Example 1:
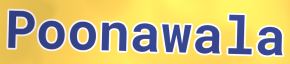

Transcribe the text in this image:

Poonawala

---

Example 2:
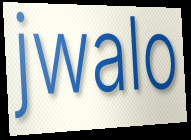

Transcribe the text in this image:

jwalo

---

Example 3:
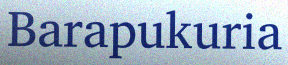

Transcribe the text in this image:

Barapukuria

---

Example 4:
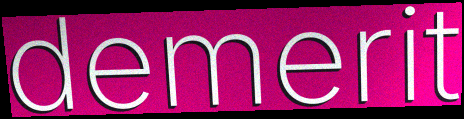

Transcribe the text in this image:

demerit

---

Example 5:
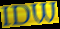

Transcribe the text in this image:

IDW